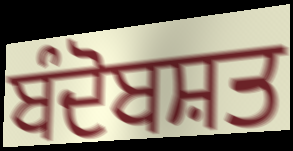
ਬੰਦੋਬਸ਼ਤ